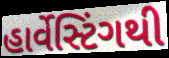
હાર્વેસ્ટિંગથી